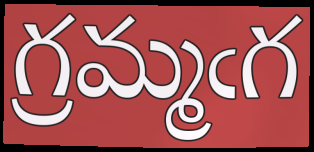
గ్రమ్మఁగ